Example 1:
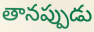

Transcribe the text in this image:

తానప్పుడు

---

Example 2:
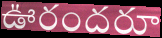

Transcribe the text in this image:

ఊరందరూ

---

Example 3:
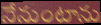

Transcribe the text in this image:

నేనుంటాను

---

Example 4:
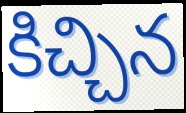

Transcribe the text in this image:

కిచ్చిన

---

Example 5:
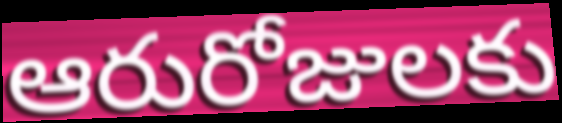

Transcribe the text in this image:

ఆరురోజులకు